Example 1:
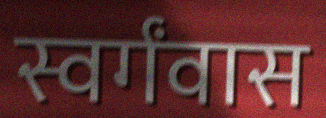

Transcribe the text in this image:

स्वर्गंवास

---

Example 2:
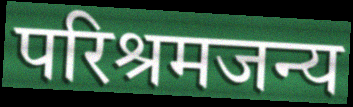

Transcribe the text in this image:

परिश्रमजन्य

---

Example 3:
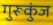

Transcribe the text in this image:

गुरूकुंज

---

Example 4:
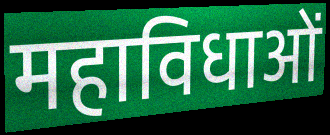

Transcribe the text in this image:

महाविधाओं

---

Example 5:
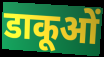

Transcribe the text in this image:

डाकूओं